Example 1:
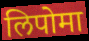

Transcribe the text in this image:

लिपोमा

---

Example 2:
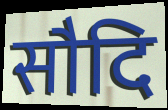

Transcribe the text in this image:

सौदि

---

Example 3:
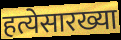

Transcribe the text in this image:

हत्येसारख्या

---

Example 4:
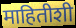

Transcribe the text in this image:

माहितीशी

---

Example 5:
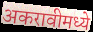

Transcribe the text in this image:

अकरावीमध्ये